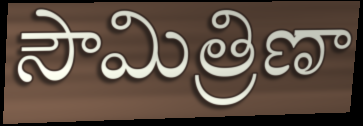
సౌమిత్రిణా